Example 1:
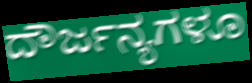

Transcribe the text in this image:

ದೌರ್ಜನ್ಯಗಳೂ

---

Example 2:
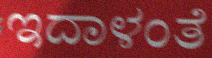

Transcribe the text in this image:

ಇದಾಳಂತೆ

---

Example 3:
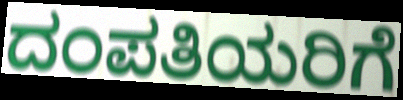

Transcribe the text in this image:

ದಂಪತಿಯರಿಗೆ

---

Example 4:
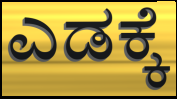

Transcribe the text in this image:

ಎಡಕ್ಕೆ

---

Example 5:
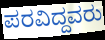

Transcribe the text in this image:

ಪರವಿದ್ದವರು